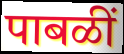
पाबळीं